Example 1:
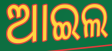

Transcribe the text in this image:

ଆଇଲ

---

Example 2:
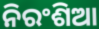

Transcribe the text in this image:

ନିରଂଶିଆ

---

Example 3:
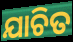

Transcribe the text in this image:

ଯାଚିତ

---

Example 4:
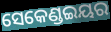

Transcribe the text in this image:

ସେକେଣ୍ଡଇୟର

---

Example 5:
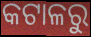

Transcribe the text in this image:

କଟାଳରୁ